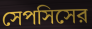
সেপসিসের